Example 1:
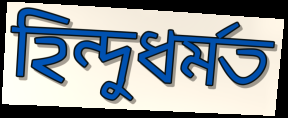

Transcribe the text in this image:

হিন্দুধৰ্মত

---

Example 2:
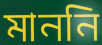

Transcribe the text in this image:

মাননি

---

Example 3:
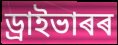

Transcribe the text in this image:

ড্ৰাইভাৰৰ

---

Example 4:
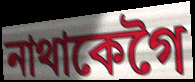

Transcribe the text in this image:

নাথাকেগৈ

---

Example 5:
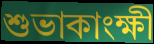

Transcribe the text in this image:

শুভাকাংক্ষী